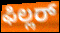
ಫಿಲ್ಲರ್